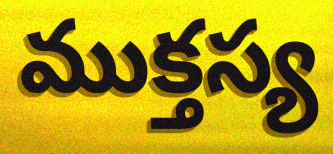
ముక్తస్య